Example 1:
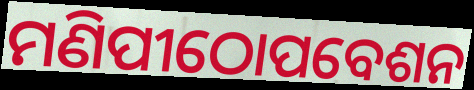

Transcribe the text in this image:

ମଣିପୀଠୋପବେଶନ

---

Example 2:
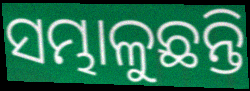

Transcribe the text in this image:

ସମ୍ଭାଳୁଛନ୍ତି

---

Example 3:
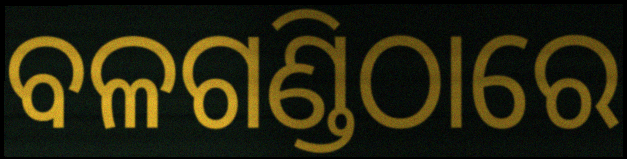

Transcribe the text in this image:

ବଳଗଣ୍ଡିଠାରେ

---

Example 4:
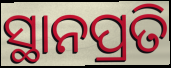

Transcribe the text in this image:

ସ୍ଥାନପ୍ରତି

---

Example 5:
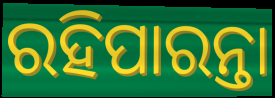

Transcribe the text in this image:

ରହିପାରନ୍ତା